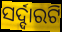
ସର୍ଦ୍ଦାରଟି